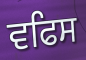
ਵਫਿਸ